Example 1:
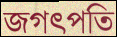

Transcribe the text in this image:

জগৎপতি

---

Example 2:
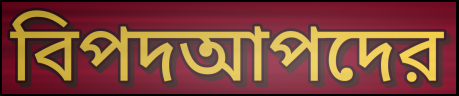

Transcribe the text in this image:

বিপদআপদের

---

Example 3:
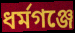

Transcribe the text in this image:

ধর্মগঞ্জে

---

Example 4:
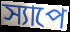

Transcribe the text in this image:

স্যাপে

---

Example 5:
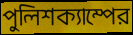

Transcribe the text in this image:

পুলিশক্যাম্পের